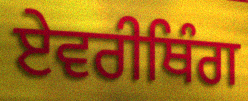
ਏਵਰੀਥਿੰਗ